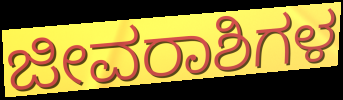
ಜೀವರಾಶಿಗಳ